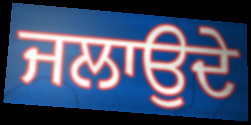
ਜਲਾਉਦੇ